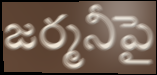
జర్మనీపై